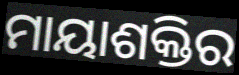
ମାୟାଶକ୍ତିର